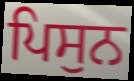
ਪਿਸੁਨ